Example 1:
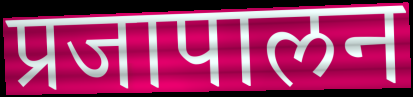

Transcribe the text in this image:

प्रजापालन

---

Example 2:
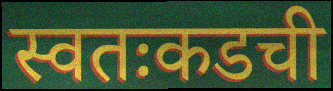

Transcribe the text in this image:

स्वतःकडची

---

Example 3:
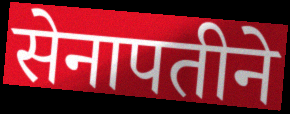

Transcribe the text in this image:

सेनापतीने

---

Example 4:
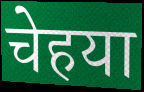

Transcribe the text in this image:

चेहया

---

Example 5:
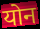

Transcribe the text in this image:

योन